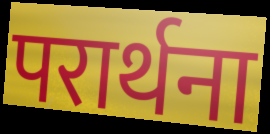
परार्थना